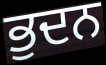
ਭੁਦਨ